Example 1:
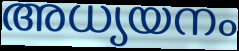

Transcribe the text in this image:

അധ്യയനം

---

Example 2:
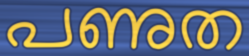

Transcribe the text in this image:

പണുത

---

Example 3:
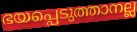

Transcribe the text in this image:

ഭയപ്പെടുത്താനല്ല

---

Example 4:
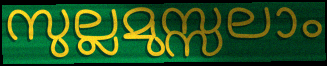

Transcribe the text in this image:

സുല്ലമുസ്സലാം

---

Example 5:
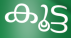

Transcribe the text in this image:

കൂട്ട